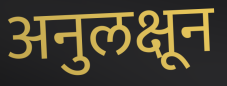
अनुलक्षून